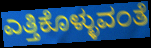
ಎತ್ತಿಕೊಳ್ಳುವಂತೆ